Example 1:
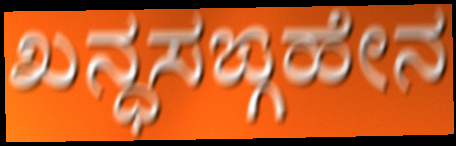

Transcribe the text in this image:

ಖನ್ಧಸಙ್ಗಹೇನ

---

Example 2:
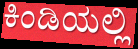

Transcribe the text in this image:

ಕಿಂಡಿಯಲ್ಲಿ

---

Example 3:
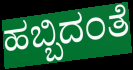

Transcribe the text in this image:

ಹಬ್ಬಿದಂತೆ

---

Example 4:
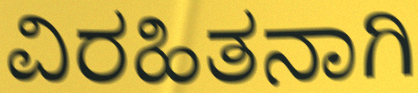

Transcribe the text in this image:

ವಿರಹಿತನಾಗಿ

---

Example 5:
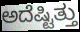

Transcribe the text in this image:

ಅದೆಷ್ಟಿತ್ತು